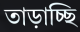
তাড়াচ্ছি